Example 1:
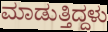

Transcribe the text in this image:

ಮಾಡುತ್ತಿದ್ದಳು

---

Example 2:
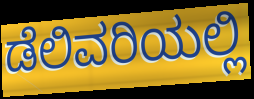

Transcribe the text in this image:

ಡೆಲಿವರಿಯಲ್ಲಿ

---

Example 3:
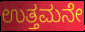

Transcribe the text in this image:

ಉತ್ತಮನೇ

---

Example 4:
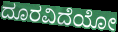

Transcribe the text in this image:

ದೂರವಿದೆಯೋ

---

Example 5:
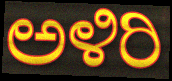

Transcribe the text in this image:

ಅಳಿರಿ